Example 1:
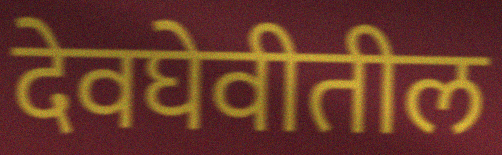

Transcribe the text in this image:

देवघेवीतील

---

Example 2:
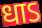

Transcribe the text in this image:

धाऽ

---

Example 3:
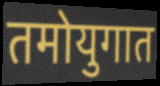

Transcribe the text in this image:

तमोयुगात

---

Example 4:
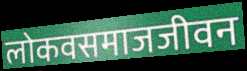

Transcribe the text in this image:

लोकवसमाजजीवन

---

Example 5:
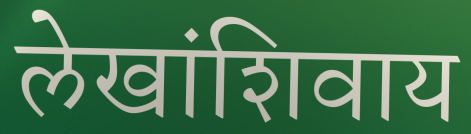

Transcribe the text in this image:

लेखांशिवाय